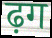
ढ़ग